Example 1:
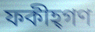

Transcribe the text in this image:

ফকীহ্গণ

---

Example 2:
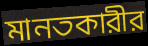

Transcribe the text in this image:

মানতকারীর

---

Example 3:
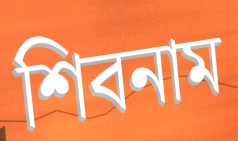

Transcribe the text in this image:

শিবনাম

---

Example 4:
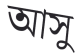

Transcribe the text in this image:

আসু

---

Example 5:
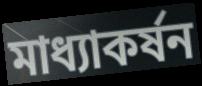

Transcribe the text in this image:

মাধ্যাকর্ষন